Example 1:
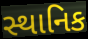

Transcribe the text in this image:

સ્થાનિક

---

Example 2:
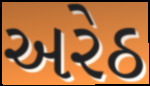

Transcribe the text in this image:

અરેઠ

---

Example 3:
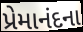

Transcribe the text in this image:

પ્રેમાનંદના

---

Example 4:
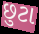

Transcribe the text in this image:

છુટા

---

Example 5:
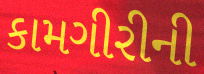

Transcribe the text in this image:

કામગીરીની